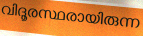
വിദൂരസ്ഥരായിരുന്ന